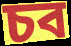
চব